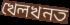
খেলখনত